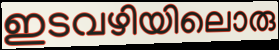
ഇടവഴിയിലൊരു